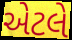
એેટલે